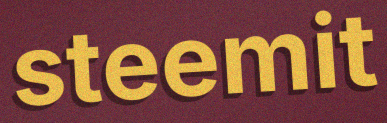
steemit